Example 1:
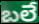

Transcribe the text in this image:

బలే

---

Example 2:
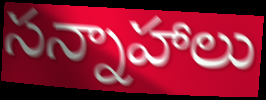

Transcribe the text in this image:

సన్నాహాలు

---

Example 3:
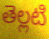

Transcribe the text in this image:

తెల్లటి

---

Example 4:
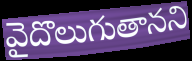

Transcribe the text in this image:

వైదొలుగుతానని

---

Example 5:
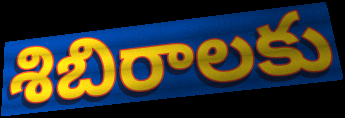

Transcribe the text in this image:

శిబిరాలకు